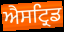
ਐਸਟ੍ਰਿਡ